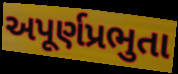
અપૂર્ણપ્રભુતા